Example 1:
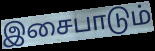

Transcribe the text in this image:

இசைபாடும்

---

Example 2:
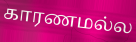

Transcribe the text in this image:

காரணமல்ல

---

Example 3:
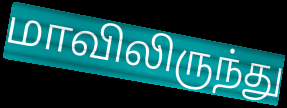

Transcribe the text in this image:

மாவிலிருந்து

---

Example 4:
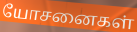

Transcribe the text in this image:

யோசனைகள்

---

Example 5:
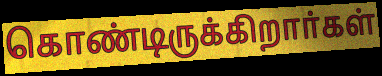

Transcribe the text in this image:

கொண்டிருக்கிறார்கள்